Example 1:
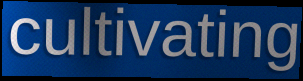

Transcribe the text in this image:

cultivating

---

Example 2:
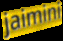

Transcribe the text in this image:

jaimini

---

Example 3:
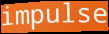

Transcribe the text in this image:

impulse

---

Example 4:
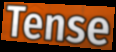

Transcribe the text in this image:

Tense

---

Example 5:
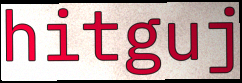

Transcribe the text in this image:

hitguj